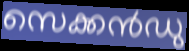
സെക്കൻഡു